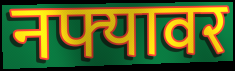
नफ्यावर